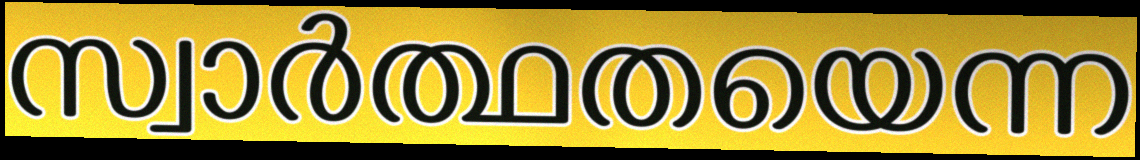
സ്വാർത്ഥതയെന്ന